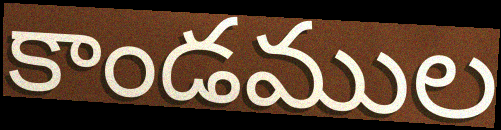
కాండముల